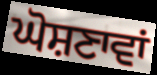
ਘੋਸ਼ਣਾਵਾਂ